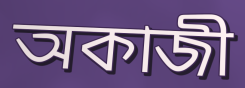
অকাজী